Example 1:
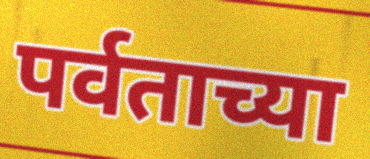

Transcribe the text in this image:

पर्वताच्या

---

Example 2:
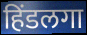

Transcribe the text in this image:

हिंडलगा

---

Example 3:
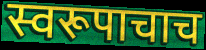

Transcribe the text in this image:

स्वरूपाचाच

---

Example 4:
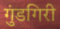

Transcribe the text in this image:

गुंडगिरी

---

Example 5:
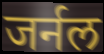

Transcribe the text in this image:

जर्नल